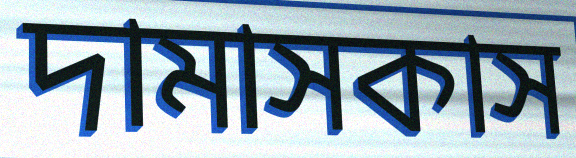
দামাসকাস